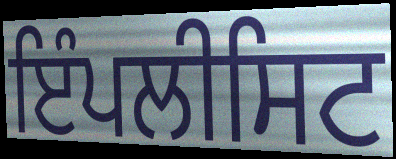
ਇੰਪਲੀਸਿਟ